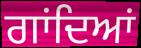
ਗਾਂਦਿਆਂ